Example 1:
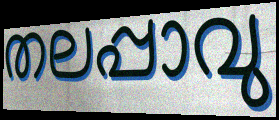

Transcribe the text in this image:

തലപ്പാവു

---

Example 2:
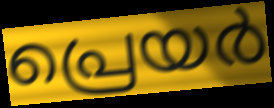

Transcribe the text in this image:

പ്രെയർ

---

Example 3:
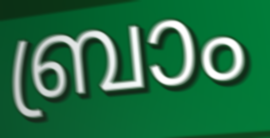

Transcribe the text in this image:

ബ്രാം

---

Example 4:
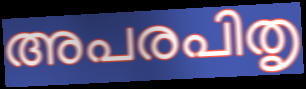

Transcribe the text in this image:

അപരപിതൃ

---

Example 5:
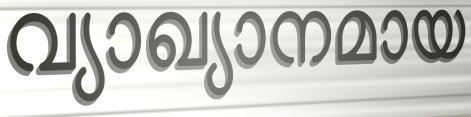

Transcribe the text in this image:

വ്യാഖ്യാനമായ